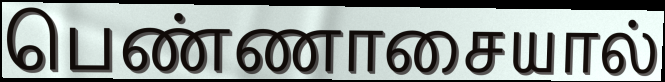
பெண்ணாசையால்